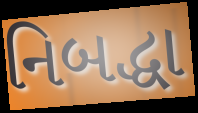
નિબદ્ધા